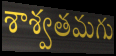
శాశ్వతమగు